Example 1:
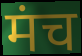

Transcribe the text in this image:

मंच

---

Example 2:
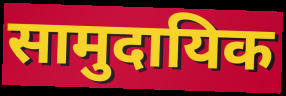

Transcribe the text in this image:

सामुदायिक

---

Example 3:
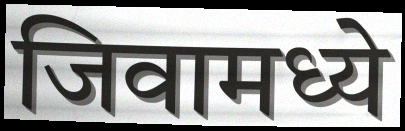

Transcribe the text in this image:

जिवामध्ये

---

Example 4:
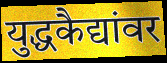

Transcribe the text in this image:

युद्धकैद्यांवर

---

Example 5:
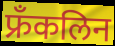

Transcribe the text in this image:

फ्रॅंकलिन